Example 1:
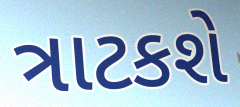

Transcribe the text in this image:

ત્રાટકશે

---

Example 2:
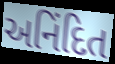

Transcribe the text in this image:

અનિંદિત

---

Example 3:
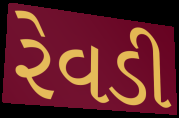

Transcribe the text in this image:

રેવડી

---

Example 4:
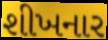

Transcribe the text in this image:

શીખનાર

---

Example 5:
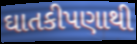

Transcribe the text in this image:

ઘાતકીપણાથી